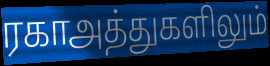
ரகாஅத்துகளிலும்